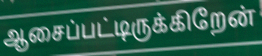
ஆசைப்பட்டிருக்கிறேன்